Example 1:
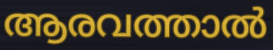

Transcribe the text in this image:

ആരവത്താൽ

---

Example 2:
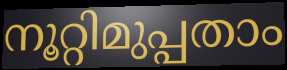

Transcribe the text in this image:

നൂറ്റിമുപ്പതാം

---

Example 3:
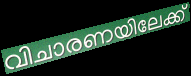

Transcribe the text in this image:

വിചാരണയിലേക്ക്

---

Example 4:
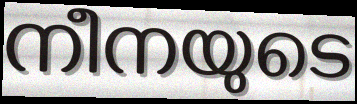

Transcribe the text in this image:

നീനയുടെ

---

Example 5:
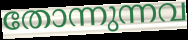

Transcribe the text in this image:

തോന്നുന്നവ